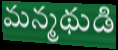
మన్మథుడి